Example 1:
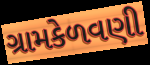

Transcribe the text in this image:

ગ્રામકેળવણી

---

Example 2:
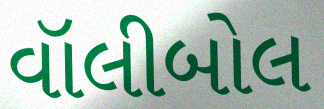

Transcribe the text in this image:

વૉલીબોલ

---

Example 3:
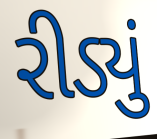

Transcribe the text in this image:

રીડ્યું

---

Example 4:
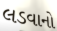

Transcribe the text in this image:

લડવાનો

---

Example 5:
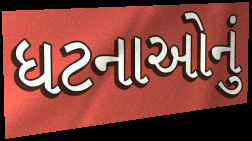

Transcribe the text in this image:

ધટનાઓનું